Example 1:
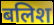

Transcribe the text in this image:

बलिश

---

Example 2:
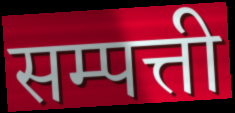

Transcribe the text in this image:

सम्पत्ती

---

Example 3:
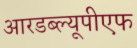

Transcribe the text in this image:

आरडब्ल्यूपीएफ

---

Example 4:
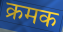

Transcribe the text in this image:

क्रमक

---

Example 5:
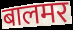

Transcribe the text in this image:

बालमर